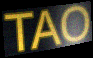
TAO